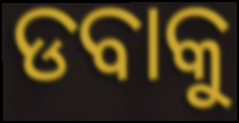
ଡବାକୁ